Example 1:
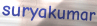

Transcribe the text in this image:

suryakumar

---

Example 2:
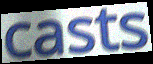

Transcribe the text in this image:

casts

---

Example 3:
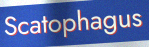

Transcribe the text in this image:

Scatophagus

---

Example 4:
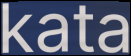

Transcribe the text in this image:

kata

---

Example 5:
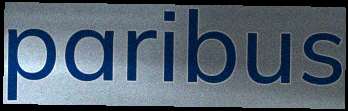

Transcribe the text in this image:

paribus